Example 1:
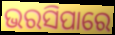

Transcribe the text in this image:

ଭରସିପାରେ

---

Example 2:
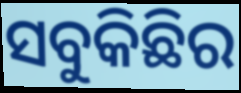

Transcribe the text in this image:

ସବୁକିଛିର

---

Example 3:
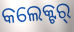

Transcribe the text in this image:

କଲେକ୍ଟର୍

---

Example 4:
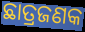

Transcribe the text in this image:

ଛାତ୍ରଜଣକ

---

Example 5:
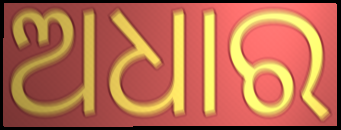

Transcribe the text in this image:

ଅଧାର